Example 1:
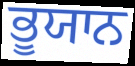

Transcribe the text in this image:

ਭੂਯਾਨ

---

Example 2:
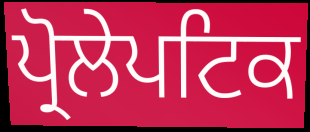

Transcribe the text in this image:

ਪ੍ਰੋਲੇਪਟਿਕ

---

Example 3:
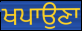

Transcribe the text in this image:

ਖਪਾਉਣਾ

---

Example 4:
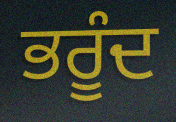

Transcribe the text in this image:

ਭਰੂੰਦ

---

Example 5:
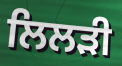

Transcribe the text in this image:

ਲਿਲੜੀ